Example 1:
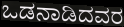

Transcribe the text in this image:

ಒಡನಾಡಿದವರ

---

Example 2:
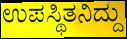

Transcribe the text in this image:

ಉಪಸ್ಥಿತನಿದ್ದು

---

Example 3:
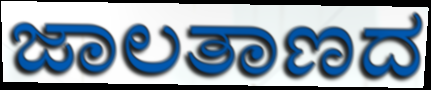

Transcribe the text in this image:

ಜಾಲತಾಣದ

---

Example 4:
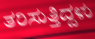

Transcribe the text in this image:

ತರಿಸುತ್ತಿದ್ದಳು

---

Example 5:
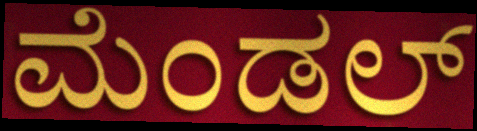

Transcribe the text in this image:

ಮೆಂಡಲ್